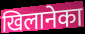
खिलानेका